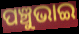
ପଞ୍ଚୁଭାଇ